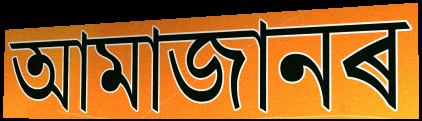
আমাজানৰ